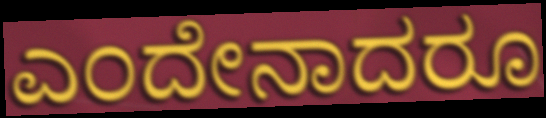
ಎಂದೇನಾದರೂ